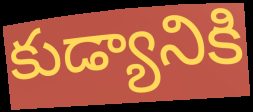
కుడ్యానికి